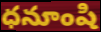
ధనూంషి